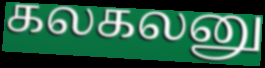
கலகலனு